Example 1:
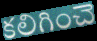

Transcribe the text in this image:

కలిగించె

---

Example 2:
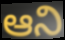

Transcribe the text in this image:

ఆని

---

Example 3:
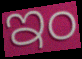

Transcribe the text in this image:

ఇం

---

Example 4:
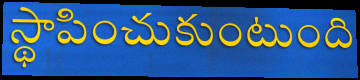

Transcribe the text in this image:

స్థాపించుకుంటుంది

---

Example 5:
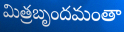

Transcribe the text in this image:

మిత్రబృందమంతా